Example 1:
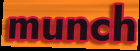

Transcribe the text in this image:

munch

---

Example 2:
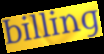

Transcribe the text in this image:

billing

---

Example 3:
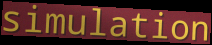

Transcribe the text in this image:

simulation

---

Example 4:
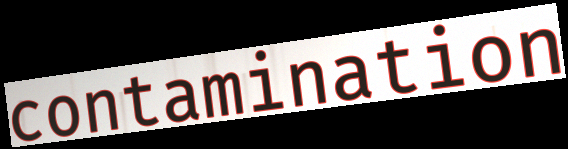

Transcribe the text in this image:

contamination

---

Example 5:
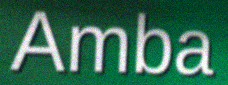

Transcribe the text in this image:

Amba